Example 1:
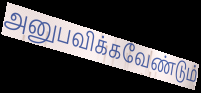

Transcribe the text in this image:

அனுபவிக்கவேண்டும்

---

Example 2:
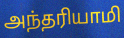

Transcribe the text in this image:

அந்தரியாமி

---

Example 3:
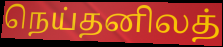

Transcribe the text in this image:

நெய்தனிலத்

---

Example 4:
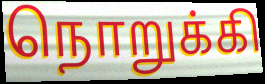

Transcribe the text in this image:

நொறுக்கி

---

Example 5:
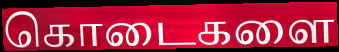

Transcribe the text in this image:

கொடைகளை